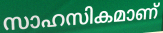
സാഹസികമാണ്